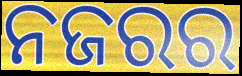
ନଜରର